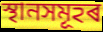
স্থানসমূহৰ